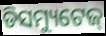
ଡିସମ୍ୟୁଟେଜ୍